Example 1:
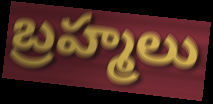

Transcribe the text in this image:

బ్రహ్మలు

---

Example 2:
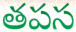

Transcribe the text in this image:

తపస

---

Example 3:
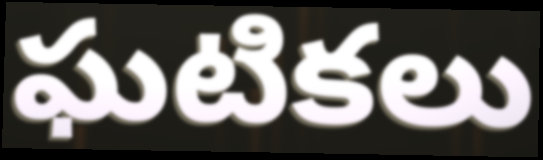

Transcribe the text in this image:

ఘటికలు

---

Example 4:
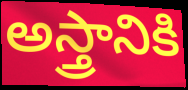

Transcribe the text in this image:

అస్త్రానికి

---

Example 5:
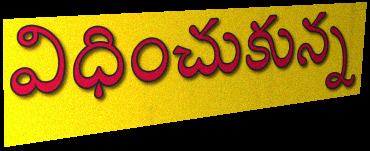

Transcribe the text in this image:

విధించుకున్న